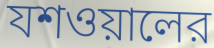
যশওয়ালের